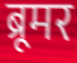
ब्रूमर